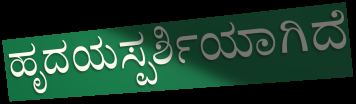
ಹೃದಯಸ್ಪರ್ಶಿಯಾಗಿದೆ